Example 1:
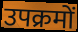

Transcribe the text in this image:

उपक्रमों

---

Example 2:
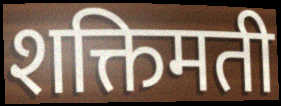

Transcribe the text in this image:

शक्तिमती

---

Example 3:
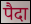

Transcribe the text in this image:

पैदा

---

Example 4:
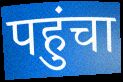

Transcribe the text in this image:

पहुंचा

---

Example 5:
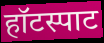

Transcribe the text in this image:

हॉटस्पाट